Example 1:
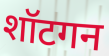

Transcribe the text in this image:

शॉटगन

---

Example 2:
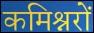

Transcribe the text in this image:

कमिश्नरों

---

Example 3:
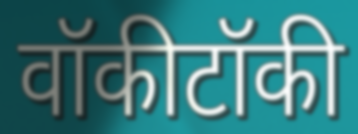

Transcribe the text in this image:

वॉकीटॉकी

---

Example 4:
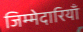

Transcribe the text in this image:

जिम्मेदारियाँ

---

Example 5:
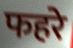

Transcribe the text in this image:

फहरे